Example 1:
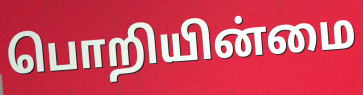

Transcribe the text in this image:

பொறியின்மை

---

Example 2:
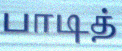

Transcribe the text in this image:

பாடித்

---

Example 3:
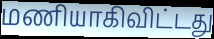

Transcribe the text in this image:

மணியாகிவிட்டது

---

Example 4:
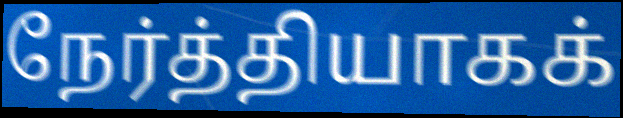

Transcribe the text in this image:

நேர்த்தியாகக்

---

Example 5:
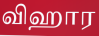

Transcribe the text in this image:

விஹார